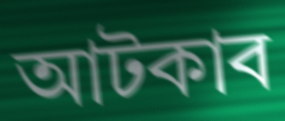
আটকাব